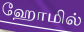
ஹோமில்